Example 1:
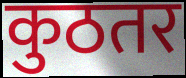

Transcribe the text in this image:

कुठतर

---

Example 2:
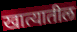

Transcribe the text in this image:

खात्यातील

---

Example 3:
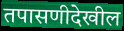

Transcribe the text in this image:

तपासणीदेखील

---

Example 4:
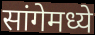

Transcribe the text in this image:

सांगेमध्ये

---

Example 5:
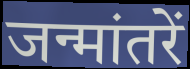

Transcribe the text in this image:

जन्मांतरें